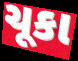
ચૂકા